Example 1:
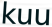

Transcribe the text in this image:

kuu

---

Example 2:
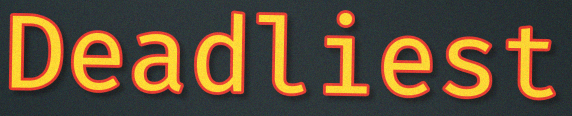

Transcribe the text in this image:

Deadliest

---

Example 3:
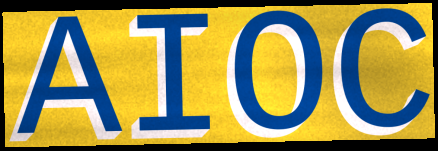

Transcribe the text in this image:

AIOC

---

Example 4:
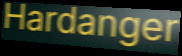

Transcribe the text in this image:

Hardanger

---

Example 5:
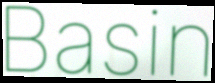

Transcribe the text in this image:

Basin